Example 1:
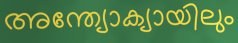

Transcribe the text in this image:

അന്ത്യോക്യായിലും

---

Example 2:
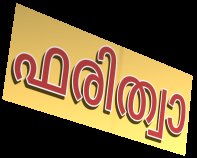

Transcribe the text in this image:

ഫരിത്വാ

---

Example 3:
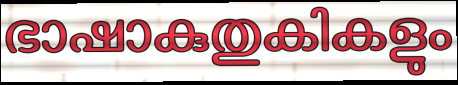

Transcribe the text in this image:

ഭാഷാകുതുകികളും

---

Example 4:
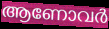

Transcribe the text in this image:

ആണോവർ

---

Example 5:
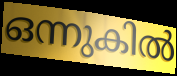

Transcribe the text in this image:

ഒന്നുകിൽ